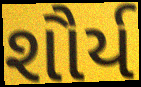
શૌર્ય